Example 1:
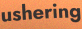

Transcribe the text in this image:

ushering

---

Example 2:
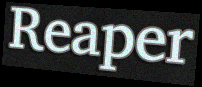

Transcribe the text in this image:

Reaper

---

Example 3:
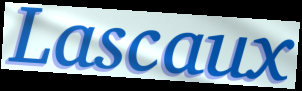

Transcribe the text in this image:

Lascaux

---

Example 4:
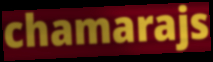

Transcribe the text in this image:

chamarajs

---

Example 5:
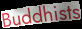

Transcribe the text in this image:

Buddhists